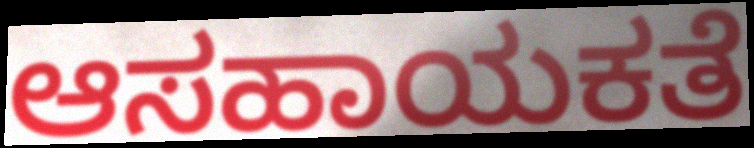
ಆಸಹಾಯಕತೆ